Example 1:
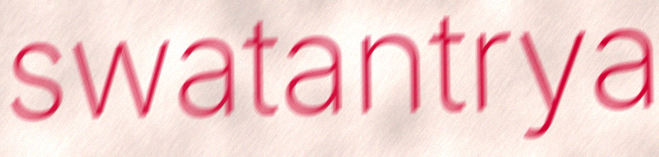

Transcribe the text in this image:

swatantrya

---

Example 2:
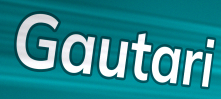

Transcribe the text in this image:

Gautari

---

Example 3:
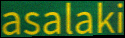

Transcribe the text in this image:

asalaki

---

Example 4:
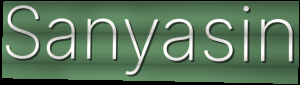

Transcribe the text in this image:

Sanyasin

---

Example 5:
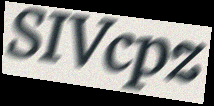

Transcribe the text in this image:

SIVcpz